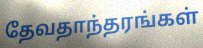
தேவதாந்தரங்கள்